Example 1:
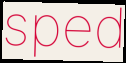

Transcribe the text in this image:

sped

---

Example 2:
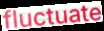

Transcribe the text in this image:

fluctuate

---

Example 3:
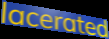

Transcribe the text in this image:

lacerated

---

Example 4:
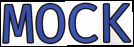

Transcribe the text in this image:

MOCK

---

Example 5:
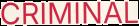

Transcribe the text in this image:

CRIMINAL